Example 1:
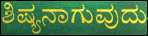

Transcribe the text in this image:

ಶಿಷ್ಯನಾಗುವುದು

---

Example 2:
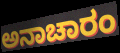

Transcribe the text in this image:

ಅನಾಚಾರಂ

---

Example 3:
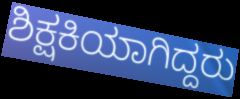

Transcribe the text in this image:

ಶಿಕ್ಷಕಿಯಾಗಿದ್ದರು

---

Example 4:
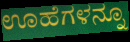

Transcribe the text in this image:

ಊಹೆಗಳನ್ನೂ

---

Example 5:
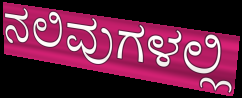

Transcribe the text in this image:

ನಲಿವುಗಳಲ್ಲಿ